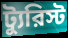
ট্যুরিস্ট